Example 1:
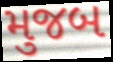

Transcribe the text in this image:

મુજબ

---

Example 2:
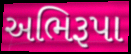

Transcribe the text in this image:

અભિરૂપા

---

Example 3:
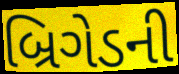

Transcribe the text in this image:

બ્રિગેડની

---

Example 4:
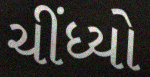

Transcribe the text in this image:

ચીંધ્યો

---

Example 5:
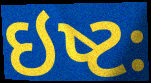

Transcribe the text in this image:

ઇષ્ટઃ